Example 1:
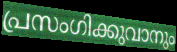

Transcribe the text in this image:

പ്രസംഗിക്കുവാനും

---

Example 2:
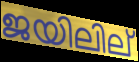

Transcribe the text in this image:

ജയിലില്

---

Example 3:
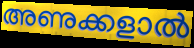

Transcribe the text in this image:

അണുക്കളാൽ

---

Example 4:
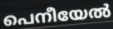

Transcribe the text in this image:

പെനീയേൽ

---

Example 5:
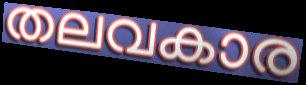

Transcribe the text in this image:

തലവകാര